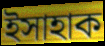
ইসাহাক